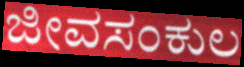
ಜೀವಸಂಕುಲ